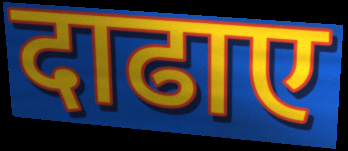
दाढाए